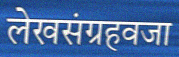
लेखसंग्रहवजा